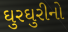
ઘુરઘુરીનો